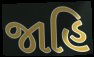
જાહિ